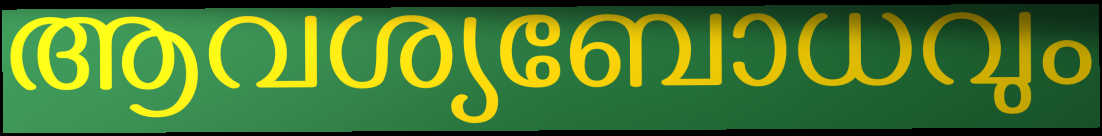
ആവശ്യബോധവും